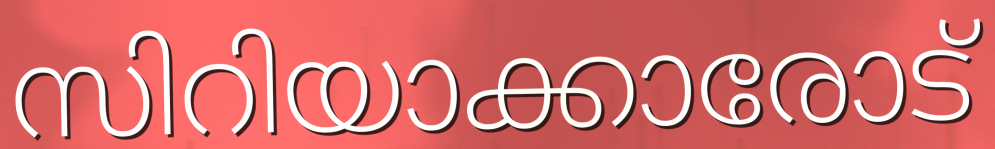
സിറിയാക്കാരോട്